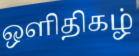
ஒளிதிகழ்